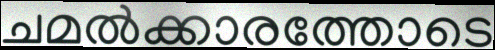
ചമൽക്കാരത്തോടെ